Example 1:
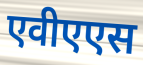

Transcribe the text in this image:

एवीएएस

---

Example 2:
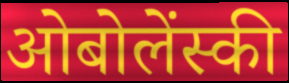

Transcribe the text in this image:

ओबोलेंस्की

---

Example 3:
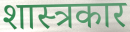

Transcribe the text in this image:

शास्त्रकार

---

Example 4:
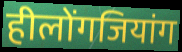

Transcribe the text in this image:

हीलोंगजियांग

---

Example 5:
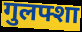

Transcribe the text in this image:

गुलफ्शा